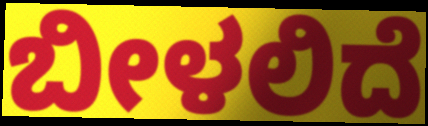
ಬೀಳಲಿದೆ